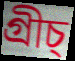
গ্ৰীচ্